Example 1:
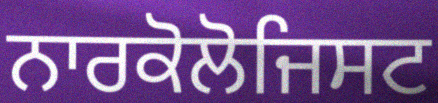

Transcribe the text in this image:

ਨਾਰਕੋਲੋਜਿਸਟ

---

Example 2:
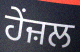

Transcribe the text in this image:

ਹੇਂਜ਼ਲ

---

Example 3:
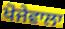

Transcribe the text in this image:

ਖੋਜੇਵਾਲਾ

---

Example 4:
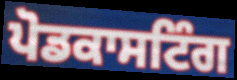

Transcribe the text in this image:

ਪੋਡਕਾਸਟਿੰਗ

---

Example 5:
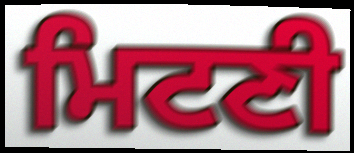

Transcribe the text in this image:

ਮਿਟਣੀ